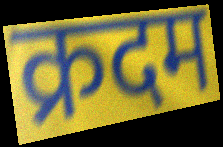
क्रदम